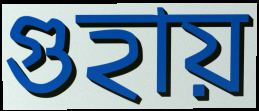
গুহায়